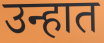
उन्हात